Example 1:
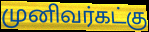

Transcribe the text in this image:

முனிவர்கட்கு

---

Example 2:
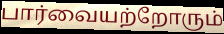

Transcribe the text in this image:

பார்வையற்றோரும்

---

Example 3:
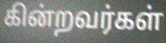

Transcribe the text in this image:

கின்றவர்கள்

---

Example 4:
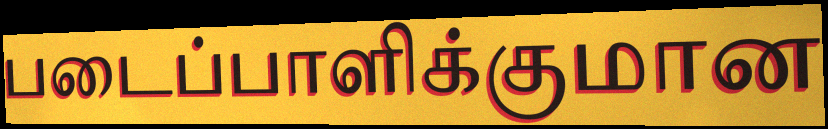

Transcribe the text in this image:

படைப்பாளிக்குமான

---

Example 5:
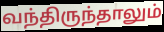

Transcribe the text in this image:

வந்திருந்தாலும்